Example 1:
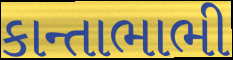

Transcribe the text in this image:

કાન્તાભાભી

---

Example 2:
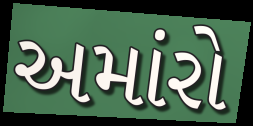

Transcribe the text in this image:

અમાંરો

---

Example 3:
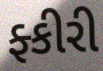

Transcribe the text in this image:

ફ્કીરી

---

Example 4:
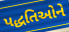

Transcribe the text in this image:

પદ્ધતિઓને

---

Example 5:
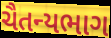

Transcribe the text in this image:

ચૈતન્યભાગ